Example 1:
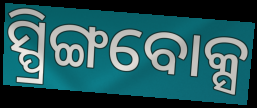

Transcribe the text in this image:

ସ୍ପ୍ରିଙ୍ଗବୋକ୍ସ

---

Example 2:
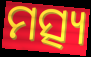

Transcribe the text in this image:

ମତ୍ସ୍ୟ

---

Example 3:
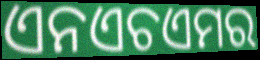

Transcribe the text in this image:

ଏନଏଚଏମର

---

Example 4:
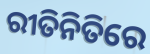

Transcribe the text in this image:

ରୀତିନିତିରେ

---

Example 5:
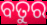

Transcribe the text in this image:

ବତୁର